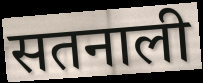
सतनाली